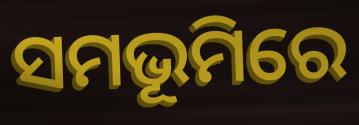
ସମଭୂମିରେ